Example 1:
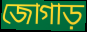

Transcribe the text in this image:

জোগাড়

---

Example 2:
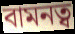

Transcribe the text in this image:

বামনত্ব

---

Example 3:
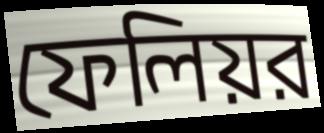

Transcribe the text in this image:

ফেলিয়র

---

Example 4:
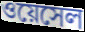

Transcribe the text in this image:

ওয়েসেল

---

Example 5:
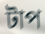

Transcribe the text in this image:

টাপ